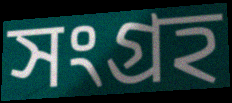
সংগ্রহ